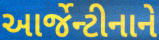
આર્જેન્ટીનાને